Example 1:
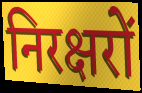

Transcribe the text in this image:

निरक्षरों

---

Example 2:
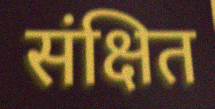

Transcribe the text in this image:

संक्षित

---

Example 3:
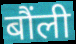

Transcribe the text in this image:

बौंली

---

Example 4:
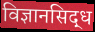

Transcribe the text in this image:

विज्ञानसिद्ध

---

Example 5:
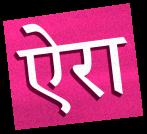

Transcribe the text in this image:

ऐरा